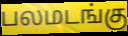
பலமடங்கு